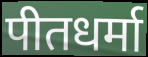
पीतधर्मा